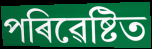
পৰিৱেষ্টিত